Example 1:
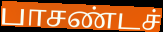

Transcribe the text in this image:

பாசண்டச்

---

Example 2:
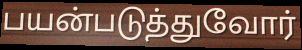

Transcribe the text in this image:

பயன்படுத்துவோர்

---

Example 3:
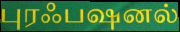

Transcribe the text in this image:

புரஃபஷனல்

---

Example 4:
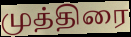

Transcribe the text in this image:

முத்திரை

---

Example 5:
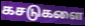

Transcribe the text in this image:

கசடுகளை